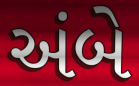
અંબે